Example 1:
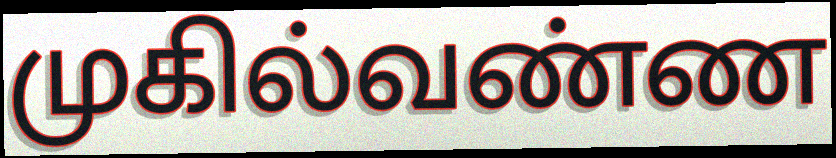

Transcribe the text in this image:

முகில்வண்ண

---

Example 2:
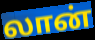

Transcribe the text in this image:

லான்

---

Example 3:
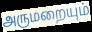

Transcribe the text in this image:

அருமறையும்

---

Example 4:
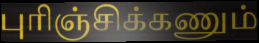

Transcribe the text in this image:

புரிஞ்சிக்கணும்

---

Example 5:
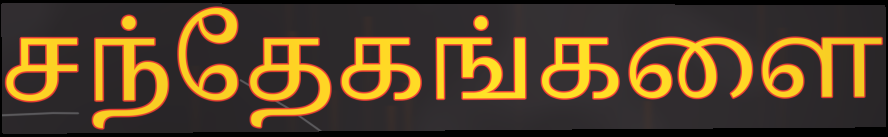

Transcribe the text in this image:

சந்தேகங்களை